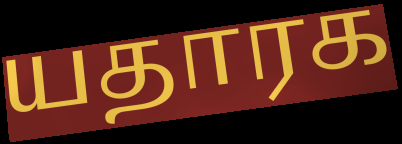
யதாரக